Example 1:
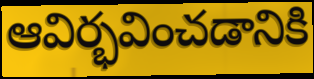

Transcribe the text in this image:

ఆవిర్భవించడానికి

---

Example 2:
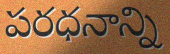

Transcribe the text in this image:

పరధనాన్ని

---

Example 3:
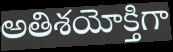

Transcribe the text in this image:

అతిశయోక్తిగా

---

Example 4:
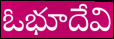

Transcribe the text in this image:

ఓభూదేవి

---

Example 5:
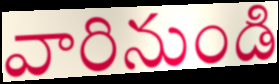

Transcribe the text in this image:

వారినుండి